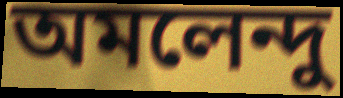
অমলেন্দু